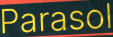
Parasol